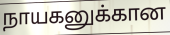
நாயகனுக்கான